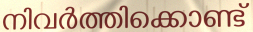
നിവർത്തിക്കൊണ്ട്